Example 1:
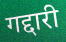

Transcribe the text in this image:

गद्दारी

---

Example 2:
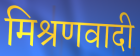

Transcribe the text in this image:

मिश्रणवादी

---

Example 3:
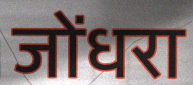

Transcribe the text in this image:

जोंधरा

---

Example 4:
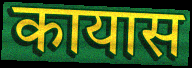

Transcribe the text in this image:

कायास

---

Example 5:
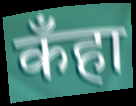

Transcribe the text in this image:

कँहा